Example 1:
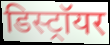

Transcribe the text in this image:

डिस्‍ट्रॉयर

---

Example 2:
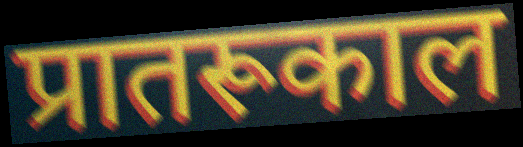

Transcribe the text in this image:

प्रातरूकाल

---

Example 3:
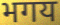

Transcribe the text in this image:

भगय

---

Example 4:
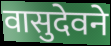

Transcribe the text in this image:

वासुदेवने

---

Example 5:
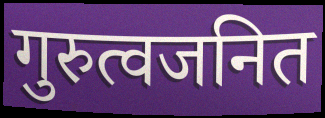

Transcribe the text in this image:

गुरुत्वजनित